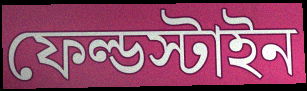
ফেল্ডস্টাইন